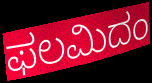
ಫಲಮಿದಂ